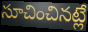
సూచించినట్లే